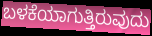
ಬಳಕೆಯಾಗುತ್ತಿರುವುದು